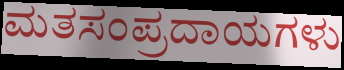
ಮತಸಂಪ್ರದಾಯಗಳು